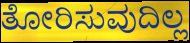
ತೋರಿಸುವುದಿಲ್ಲ